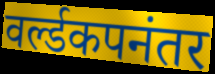
वर्ल्डकपनंतर